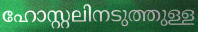
ഹോസ്റ്റലിനടുത്തുള്ള